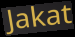
Jakat